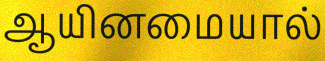
ஆயினமையால்